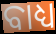
ବାଧ୍ୟ